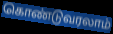
கொண்டுவரலாம்